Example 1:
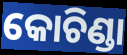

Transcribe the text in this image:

କୋଚିଣ୍ଡା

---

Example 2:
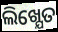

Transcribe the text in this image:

ଲିଖ୍ଯେତ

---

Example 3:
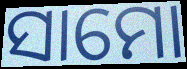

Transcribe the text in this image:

ସାମୋ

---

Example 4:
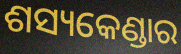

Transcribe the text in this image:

ଶସ୍ୟକେଣ୍ଡାର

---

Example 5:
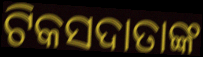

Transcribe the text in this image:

ଟିକସଦାତାଙ୍କ